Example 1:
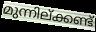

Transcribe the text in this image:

മുന്നില്ക്കണ്ട്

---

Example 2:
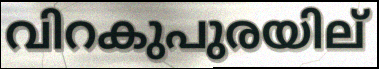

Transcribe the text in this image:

വിറകുപുരയില്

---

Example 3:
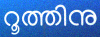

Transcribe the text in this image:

റൂത്തിനു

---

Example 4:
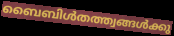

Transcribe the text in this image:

ബൈബിൾതത്ത്വങ്ങൾക്കു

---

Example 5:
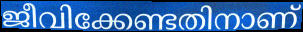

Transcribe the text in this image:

ജീവിക്കേണ്ടതിനാണ്